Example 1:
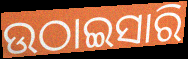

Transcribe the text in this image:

ଉଠାଇସାରି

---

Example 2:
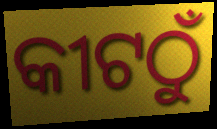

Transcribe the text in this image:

କୀଟଠୁଁ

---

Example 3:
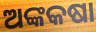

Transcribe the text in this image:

ଅଙ୍କକଷା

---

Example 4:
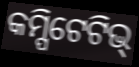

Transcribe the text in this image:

କମ୍ପିଟେଟିଭ୍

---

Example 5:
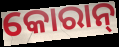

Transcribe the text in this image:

କୋରାନ୍